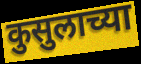
कुसुलाच्या